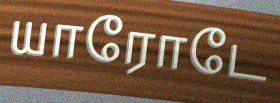
யாரோடே